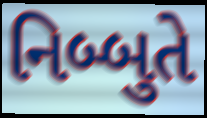
નિબ્બુતે